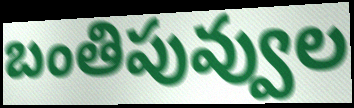
బంతిపువ్వుల